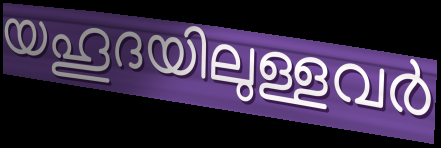
യഹൂദയിലുള്ളവർ